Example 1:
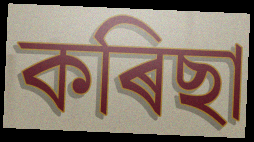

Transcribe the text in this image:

কৰিছা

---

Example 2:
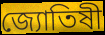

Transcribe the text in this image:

জ্যোতিষী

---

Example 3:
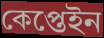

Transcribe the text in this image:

কেপ্তেইন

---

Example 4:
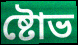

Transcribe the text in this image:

ষ্টোভ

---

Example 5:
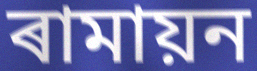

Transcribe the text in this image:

ৰামায়ন